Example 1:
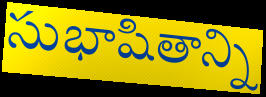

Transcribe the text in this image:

సుభాషితాన్ని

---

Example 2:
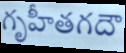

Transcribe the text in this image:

గృహీతగదౌ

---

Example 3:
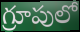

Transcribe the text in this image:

గ్రూపులో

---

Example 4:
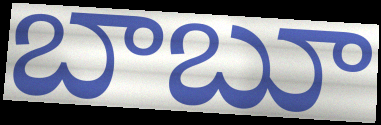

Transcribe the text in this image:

బాబూ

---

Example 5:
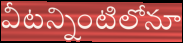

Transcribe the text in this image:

వీటన్నింటిలోనూ